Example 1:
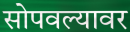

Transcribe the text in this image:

सोपवल्यावर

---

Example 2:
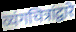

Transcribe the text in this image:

व्यंगचित्रांद्वारे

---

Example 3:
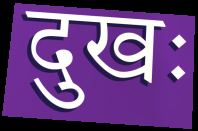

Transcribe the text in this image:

दुखः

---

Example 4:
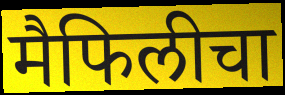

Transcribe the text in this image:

मैफिलीचा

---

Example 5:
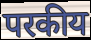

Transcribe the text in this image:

परकीय